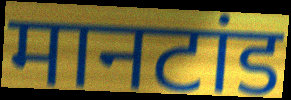
मानटांड